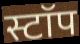
स्टॉप